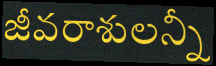
జీవరాశులన్నీ